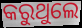
କରୁଥୁଲେ